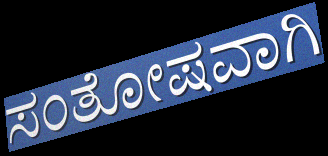
ಸಂತೋಷವಾಗಿ